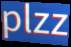
plzz